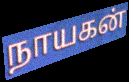
நாயகன்